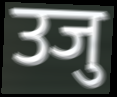
उजु